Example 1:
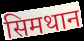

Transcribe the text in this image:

सिमथान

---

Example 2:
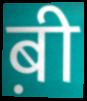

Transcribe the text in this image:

ब़ी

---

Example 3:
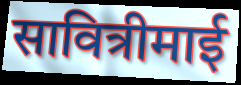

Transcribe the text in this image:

सावित्रीमाई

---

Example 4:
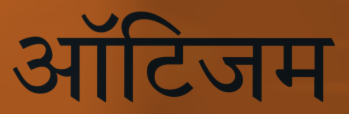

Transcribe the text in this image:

ऑटिजम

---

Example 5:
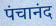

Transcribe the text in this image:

पंचानंद